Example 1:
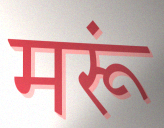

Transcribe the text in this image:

मरूं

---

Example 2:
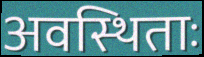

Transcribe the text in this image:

अवस्थिताः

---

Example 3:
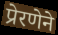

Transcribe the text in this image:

प्रेरणेने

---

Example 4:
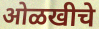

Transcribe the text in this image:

ओळखीचे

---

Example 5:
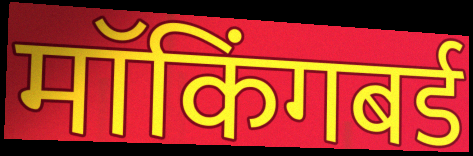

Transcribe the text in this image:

मॉकिंगबर्ड